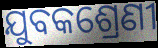
ଯୁବକଶ୍ରେଣୀ